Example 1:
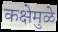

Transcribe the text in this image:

कक्षेमुळे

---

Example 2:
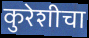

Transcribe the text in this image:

कुरेशीचा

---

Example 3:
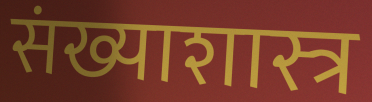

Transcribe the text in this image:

संख्याशास्त्र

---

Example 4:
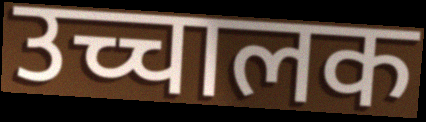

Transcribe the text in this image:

उच्चालक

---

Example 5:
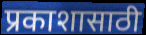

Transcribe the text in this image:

प्रकाशासाठी